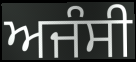
ਅਜੰਸੀ